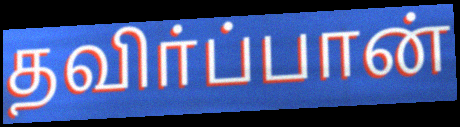
தவிர்ப்பான்